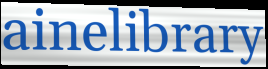
ainelibrary